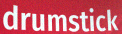
drumstick